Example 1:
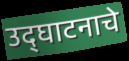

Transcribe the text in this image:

उद्‌घाटनाचे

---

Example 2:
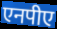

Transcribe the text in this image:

एनपीए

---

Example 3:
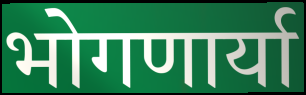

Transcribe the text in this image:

भोगणार्या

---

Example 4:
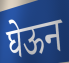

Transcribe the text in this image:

घेऊन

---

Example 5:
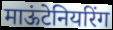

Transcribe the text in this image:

माऊंटेनियरिंग